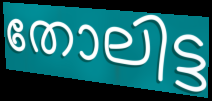
തോലിട്ട